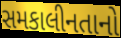
સમકાલીનતાનો